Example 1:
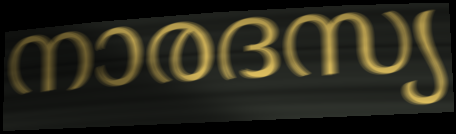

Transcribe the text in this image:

നാരദസ്യ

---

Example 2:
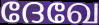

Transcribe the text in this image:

ദേഖേ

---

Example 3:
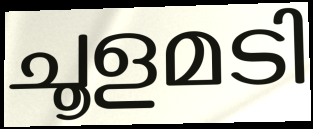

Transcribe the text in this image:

ചൂളമടി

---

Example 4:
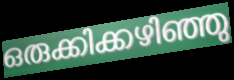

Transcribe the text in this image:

ഒരുക്കിക്കഴിഞ്ഞു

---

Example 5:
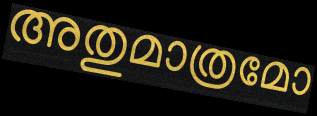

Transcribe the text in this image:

അതുമാത്രമോ